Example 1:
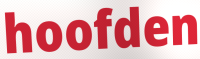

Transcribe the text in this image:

hoofden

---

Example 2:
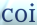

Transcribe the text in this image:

coi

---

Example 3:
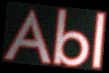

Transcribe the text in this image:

Abl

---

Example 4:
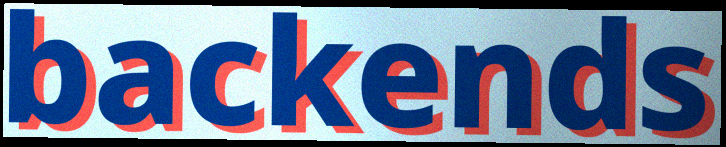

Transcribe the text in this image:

backends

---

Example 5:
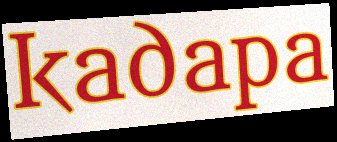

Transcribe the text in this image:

kadapa